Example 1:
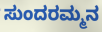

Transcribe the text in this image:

ಸುಂದರಮ್ಮನ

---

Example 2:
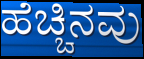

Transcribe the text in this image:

ಹೆಚ್ಚಿನವು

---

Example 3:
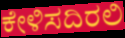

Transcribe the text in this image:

ಕೇಳಿಸದಿರಲಿ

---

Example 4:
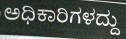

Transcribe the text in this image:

ಅಧಿಕಾರಿಗಳದ್ದು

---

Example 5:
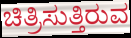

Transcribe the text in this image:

ಚಿತ್ರಿಸುತ್ತಿರುವ